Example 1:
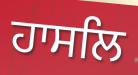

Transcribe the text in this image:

ਹਾਸਲਿ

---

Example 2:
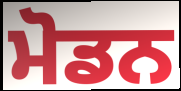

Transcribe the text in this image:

ਮੋਡਨ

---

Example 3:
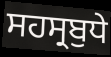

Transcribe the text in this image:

ਸਹਸ੍ਰਬੁਧੇ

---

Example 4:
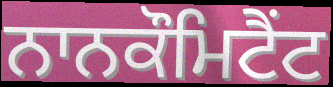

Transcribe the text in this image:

ਨਾਨਕੌਮਿਟੈਂਟ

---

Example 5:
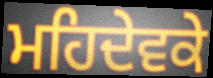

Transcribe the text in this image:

ਮਹਿਦੇਵਕੇ